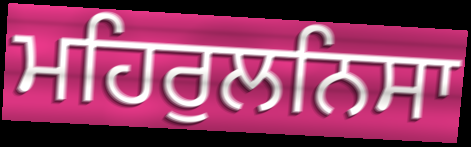
ਮਹਿਰੁਲਨਿਸਾ